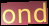
ond